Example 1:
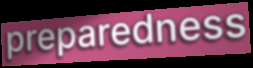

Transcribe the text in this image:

preparedness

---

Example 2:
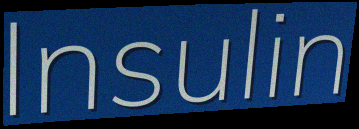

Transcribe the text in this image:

Insulin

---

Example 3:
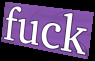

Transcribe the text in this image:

fuck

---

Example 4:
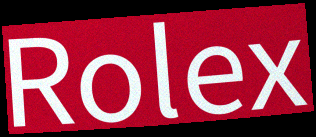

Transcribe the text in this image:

Rolex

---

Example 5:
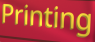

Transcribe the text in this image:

Printing